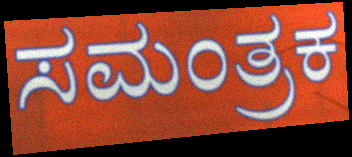
ಸಮಂತ್ರಕ